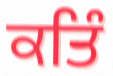
ਕਤਿੰ